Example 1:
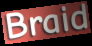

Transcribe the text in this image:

Braid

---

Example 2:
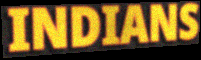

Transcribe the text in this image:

INDIANS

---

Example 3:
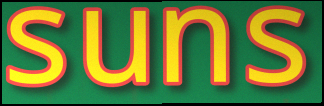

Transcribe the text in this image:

suns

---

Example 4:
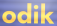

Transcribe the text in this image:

odik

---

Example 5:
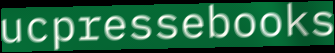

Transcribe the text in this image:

ucpressebooks